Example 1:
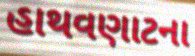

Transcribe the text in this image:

હાથવણાટના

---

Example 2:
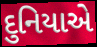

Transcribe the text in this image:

દુનિયાએ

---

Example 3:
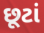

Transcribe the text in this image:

છૂટાં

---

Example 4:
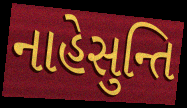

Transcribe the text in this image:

નાહેસુન્તિ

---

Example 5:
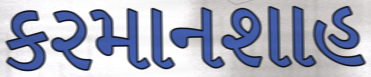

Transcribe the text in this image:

કરમાનશાહ